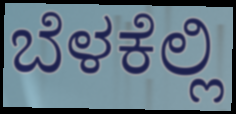
ಬೆಳಕೆಲ್ಲಿ